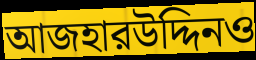
আজহারউদ্দিনও